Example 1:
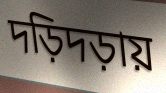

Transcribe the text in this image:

দড়িদড়ায়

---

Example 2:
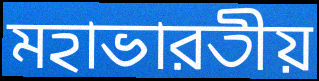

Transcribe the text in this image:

মহাভারতীয়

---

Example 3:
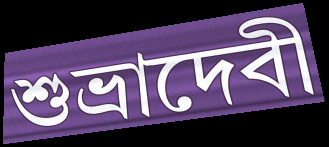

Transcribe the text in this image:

শুভ্রাদেবী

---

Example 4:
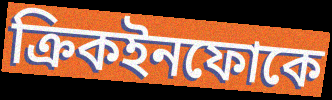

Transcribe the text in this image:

ক্রিকইনফোকে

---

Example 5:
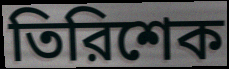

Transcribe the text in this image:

তিরিশেক